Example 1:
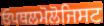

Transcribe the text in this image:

ਓਪਥਲਮੋਲੋਜਿਸਟ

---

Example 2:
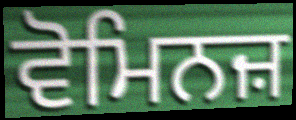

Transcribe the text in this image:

ਵੋਮਿਨਜ਼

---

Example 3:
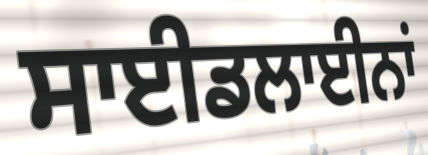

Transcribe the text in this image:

ਸਾਈਡਲਾਈਨਾਂ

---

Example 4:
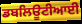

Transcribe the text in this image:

ਡਬਲਿਊਟੀਆਈ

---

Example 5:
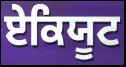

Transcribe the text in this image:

ਏਕਿਯੂਟ